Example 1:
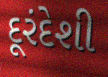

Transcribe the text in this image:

દૂરંદેશી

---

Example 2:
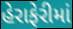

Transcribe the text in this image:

હેરાફેરીમાં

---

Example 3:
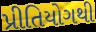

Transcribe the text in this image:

પ્રીતિયોગથી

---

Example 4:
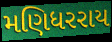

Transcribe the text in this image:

મણિધરરાય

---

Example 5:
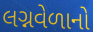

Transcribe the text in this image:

લગ્નવેળાનો